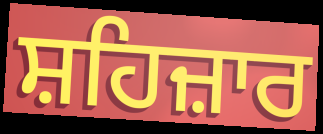
ਸ਼ਹਿਜ਼ਾਰ